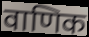
वाणिक